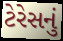
ટેરેસનું